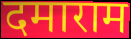
दमाराम